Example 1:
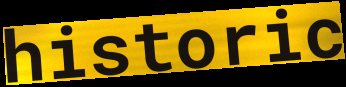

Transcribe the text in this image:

historic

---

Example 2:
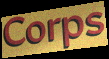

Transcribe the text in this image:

Corps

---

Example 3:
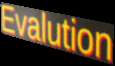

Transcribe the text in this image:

Evalution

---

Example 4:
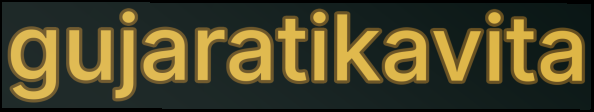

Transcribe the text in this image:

gujaratikavita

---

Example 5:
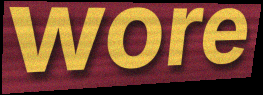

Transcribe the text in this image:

wore